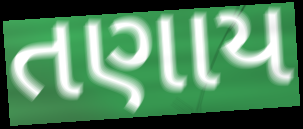
તણાય